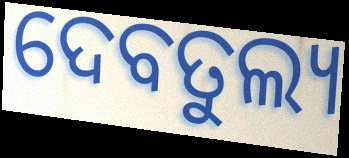
ଦେବତୁଲ୍ୟ